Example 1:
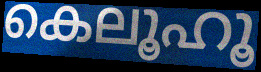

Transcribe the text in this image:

കെലൂഹൂ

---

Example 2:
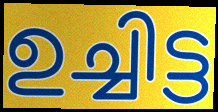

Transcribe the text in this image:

ഉച്ചിട്ട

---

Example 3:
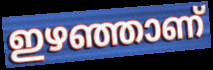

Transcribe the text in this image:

ഇഴഞ്ഞാണ്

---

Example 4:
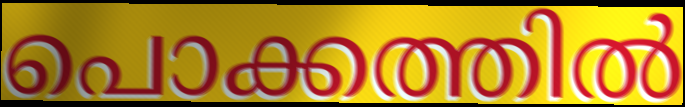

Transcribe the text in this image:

പൊക്കത്തിൽ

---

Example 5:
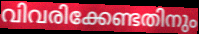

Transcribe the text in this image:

വിവരിക്കേണ്ടതിനും